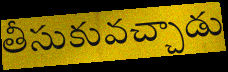
తీసుకువచ్చాడు